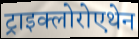
ट्राइक्लोरोएथेन